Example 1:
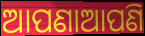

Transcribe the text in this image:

ଆପଣାଆପଣି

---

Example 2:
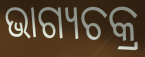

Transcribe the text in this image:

ଭାଗ୍ୟଚକ୍ର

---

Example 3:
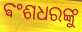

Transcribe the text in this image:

ଵଂଶଧରଙ୍କୁ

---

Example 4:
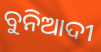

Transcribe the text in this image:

ବୁନିଆଦୀ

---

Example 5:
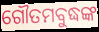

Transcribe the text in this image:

ଗୌତମବୁଦ୍ଧଙ୍କ